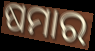
ଷମାର